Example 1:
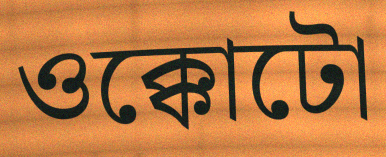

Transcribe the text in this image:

ওক্কোটো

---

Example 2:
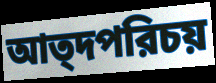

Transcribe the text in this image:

আত্দপরিচয়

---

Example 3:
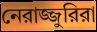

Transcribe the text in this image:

নেরাজ্জুরিরা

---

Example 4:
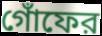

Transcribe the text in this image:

গোঁফের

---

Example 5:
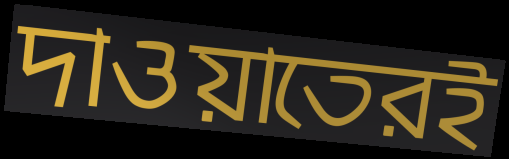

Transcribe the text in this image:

দাওয়াতেরই